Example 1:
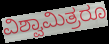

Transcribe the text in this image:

ವಿಶ್ವಾಮಿತ್ರರೂ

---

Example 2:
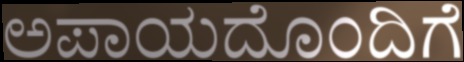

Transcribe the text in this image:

ಅಪಾಯದೊಂದಿಗೆ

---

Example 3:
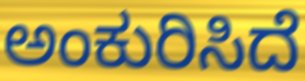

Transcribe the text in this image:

ಅಂಕುರಿಸಿದೆ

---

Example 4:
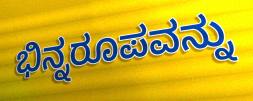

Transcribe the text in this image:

ಭಿನ್ನರೂಪವನ್ನು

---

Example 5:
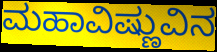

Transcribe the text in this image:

ಮಹಾವಿಷ್ಣುವಿನ